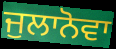
ਜੁਲਾਨੋਵਾ